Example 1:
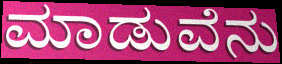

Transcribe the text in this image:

ಮಾಡುವೆನು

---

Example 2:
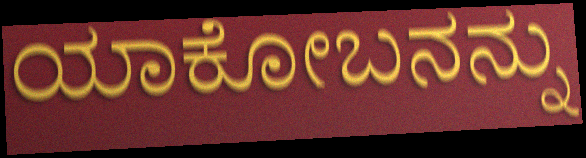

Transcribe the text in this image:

ಯಾಕೋಬನನ್ನು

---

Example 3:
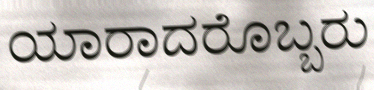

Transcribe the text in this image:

ಯಾರಾದರೊಬ್ಬರು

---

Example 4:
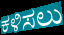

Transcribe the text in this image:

ಕಳಿಸಲು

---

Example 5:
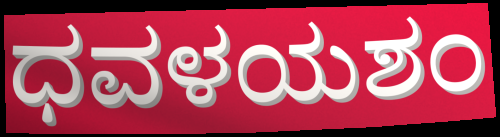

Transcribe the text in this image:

ಧವಳಯಶಂ